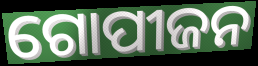
ଗୋପୀଜନ